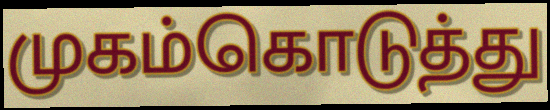
முகம்கொடுத்து